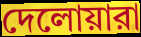
দেলোয়ারা